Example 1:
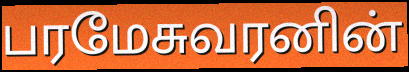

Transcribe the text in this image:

பரமேசுவரனின்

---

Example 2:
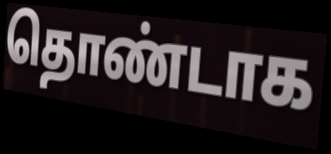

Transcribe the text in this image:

தொண்டாக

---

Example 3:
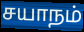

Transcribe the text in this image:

சயாநம்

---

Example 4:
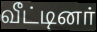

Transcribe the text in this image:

வீட்டினர்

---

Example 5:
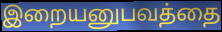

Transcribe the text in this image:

இறையனுபவத்தை